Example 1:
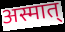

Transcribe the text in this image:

अस्मात्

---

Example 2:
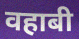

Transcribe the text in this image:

वहाबी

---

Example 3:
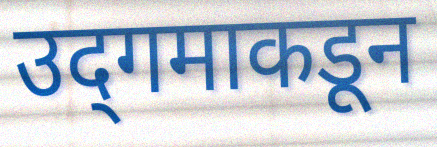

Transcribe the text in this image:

उद्‌गमाकडून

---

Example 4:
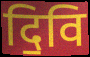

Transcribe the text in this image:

दि॒वि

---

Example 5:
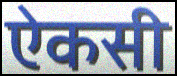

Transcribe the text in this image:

ऐकसी